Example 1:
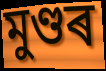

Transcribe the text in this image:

মুণ্ডৰ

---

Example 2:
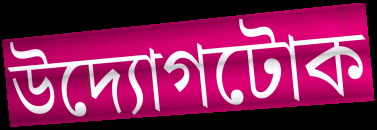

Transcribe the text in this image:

উদ্যোগটোক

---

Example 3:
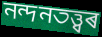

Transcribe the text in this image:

নন্দনতত্ত্বৰ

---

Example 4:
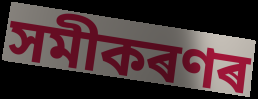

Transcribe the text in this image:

সমীকৰণৰ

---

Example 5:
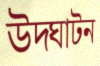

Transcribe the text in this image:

উদ্ঘাটন